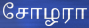
சோழரா